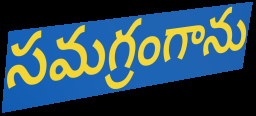
సమగ్రంగాను